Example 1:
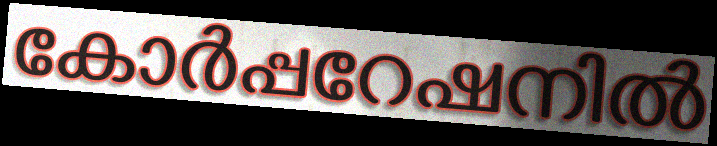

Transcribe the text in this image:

കോർപ്പറേഷനിൽ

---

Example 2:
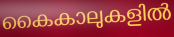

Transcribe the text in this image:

കൈകാലുകളിൽ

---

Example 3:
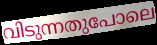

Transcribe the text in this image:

വിടുന്നതുപോലെ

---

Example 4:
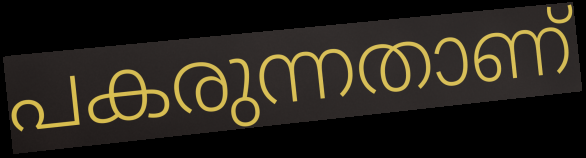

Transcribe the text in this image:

പകരുന്നതാണ്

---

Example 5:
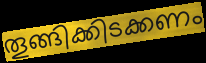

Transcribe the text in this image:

തൂങ്ങിക്കിടക്കണം